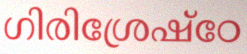
ഗിരിശ്രേഷ്ഠേ